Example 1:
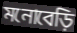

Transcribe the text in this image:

মনোবেড়ি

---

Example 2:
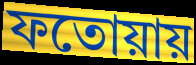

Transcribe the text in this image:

ফতোয়ায়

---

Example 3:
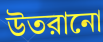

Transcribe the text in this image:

উতরানো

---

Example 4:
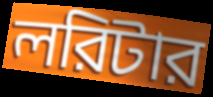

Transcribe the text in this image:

লরিটার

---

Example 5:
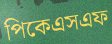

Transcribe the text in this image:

পিকেএসএফ